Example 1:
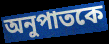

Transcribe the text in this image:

অনুপাতকে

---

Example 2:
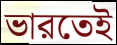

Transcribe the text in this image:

ভারতেই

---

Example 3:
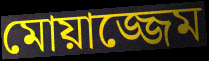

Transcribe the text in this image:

মোয়াজ্জেম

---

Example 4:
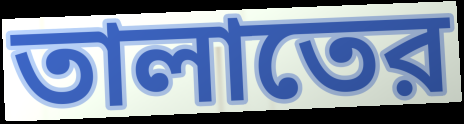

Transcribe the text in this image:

তালাতের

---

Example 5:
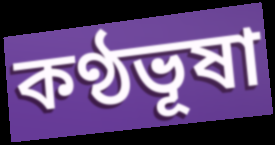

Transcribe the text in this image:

কণ্ঠভূষা